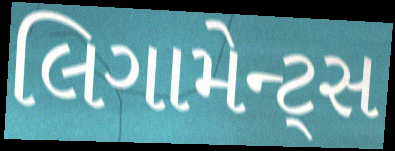
લિગામેન્ટ્સ